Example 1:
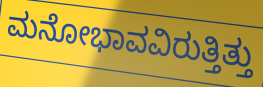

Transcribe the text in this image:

ಮನೋಭಾವವಿರುತ್ತಿತ್ತು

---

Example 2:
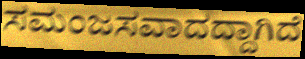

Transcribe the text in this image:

ಸಮಂಜಸವಾದದ್ದಾಗಿದೆ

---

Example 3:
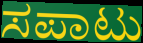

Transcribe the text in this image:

ಸಪಾಟು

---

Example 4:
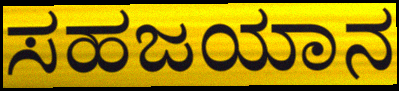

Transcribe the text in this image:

ಸಹಜಯಾನ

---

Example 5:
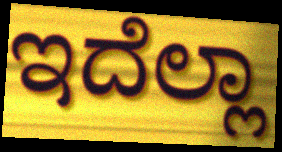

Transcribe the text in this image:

ಇದೆಲ್ಲಾ